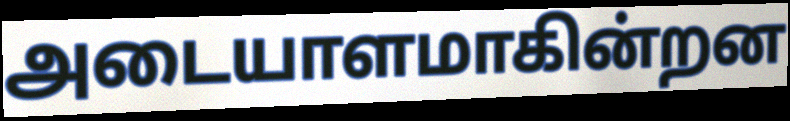
அடையாளமாகின்றன